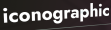
iconographic